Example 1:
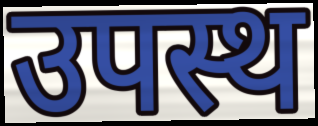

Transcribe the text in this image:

उपस्थ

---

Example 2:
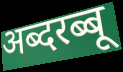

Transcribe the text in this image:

अब्दरब्बू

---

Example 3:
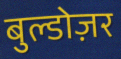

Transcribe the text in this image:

बुल्डोज़र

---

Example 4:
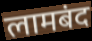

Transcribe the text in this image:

लामबंद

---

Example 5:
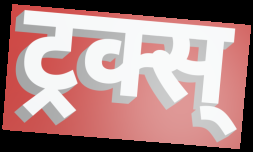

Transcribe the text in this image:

ट्रक्स्